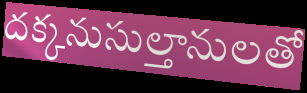
దక్కనుసుల్తానులతో